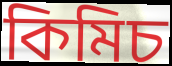
কিমিচ